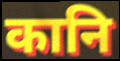
कानि